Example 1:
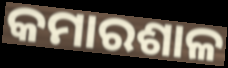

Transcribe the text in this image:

କମାରଶାଳ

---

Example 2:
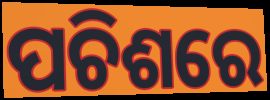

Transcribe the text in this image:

ପଚିଶରେ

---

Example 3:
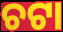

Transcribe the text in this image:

ଚଟା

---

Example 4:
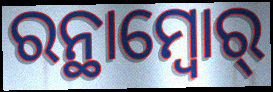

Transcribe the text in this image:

ରନ୍ଥାମ୍ବୋର୍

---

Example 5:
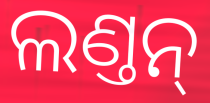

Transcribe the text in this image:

ଲଣ୍ତନ୍